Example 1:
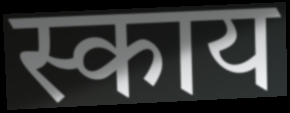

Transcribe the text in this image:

स्काय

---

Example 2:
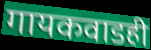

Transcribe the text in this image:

गायकवाडही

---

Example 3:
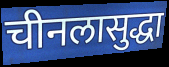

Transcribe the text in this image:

चीनलासुद्धा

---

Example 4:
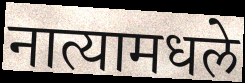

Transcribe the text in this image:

नात्यामधले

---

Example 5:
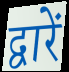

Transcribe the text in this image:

द्वारें